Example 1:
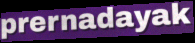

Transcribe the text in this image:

prernadayak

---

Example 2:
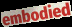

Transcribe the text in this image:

embodied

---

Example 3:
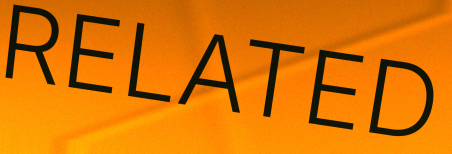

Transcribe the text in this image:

RELATED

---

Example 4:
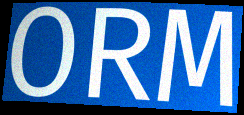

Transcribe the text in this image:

ORM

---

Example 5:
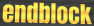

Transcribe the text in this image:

endblock